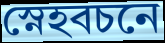
স্নেহবচনে